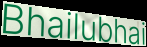
Bhailubhai